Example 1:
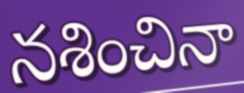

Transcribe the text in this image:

నశించినా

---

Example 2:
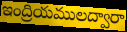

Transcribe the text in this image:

ఇంద్రియములద్వారా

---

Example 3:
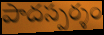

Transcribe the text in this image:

పాదస్పర్శం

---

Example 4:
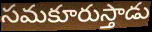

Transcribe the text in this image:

సమకూరుస్తాడు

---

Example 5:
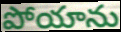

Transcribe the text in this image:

పోయాను